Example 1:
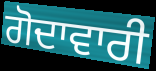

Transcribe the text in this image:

ਗੋਦਾਵਾਰੀ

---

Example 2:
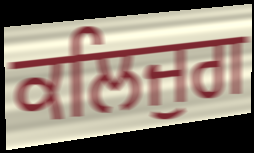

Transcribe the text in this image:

ਕਲਿਜੁਗ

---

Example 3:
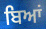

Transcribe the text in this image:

ਬਿਆਂ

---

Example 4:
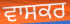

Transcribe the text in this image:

ਵਾਸਕਰ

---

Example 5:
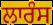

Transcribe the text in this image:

ਲਾਰੰਸ